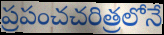
ప్రపంచచరిత్రలోనే